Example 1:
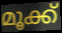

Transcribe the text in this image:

മൂക്ക്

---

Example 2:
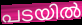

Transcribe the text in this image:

പടയിൽ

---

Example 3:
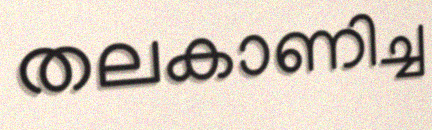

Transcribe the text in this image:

തലകാണിച്ച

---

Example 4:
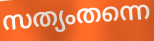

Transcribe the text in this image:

സത്യംതന്നെ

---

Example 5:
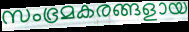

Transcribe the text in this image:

സംഭ്രമകരങ്ങളായ